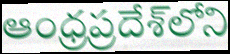
ఆంధ్రప్రదేశ్‌లోని